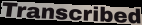
Transcribed